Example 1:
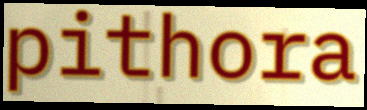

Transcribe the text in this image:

pithora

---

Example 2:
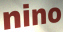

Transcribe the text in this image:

nino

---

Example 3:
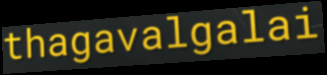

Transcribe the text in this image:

thagavalgalai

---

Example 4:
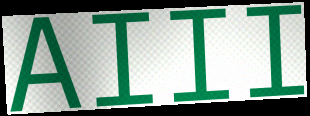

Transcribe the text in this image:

AIII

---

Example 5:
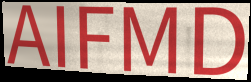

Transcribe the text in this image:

AIFMD